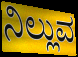
ನಿಲ್ಲುವ